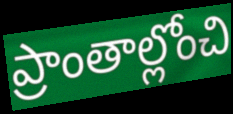
ప్రాంతాల్లోంచి